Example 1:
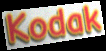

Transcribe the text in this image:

Kodak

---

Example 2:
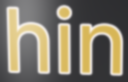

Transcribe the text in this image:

hin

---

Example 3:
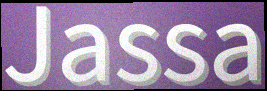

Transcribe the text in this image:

Jassa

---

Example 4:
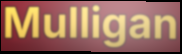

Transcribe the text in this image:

Mulligan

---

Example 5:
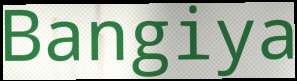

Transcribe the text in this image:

Bangiya